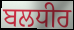
ਬਲਧੀਰ